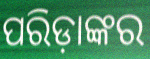
ପରିଡ଼ାଙ୍କର